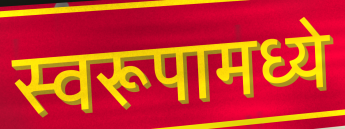
स्वरूपामध्ये